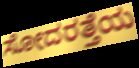
ಸೋದರತ್ತೆಯ